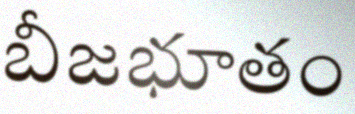
బీజభూతం